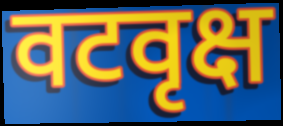
वटवृक्ष